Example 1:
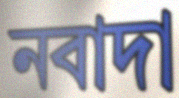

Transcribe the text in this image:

নবাদা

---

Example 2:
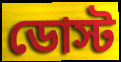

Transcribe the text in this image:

ডোস্ট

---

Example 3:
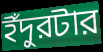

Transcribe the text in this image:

ইঁদুরটার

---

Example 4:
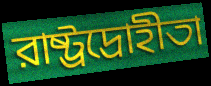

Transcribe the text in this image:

রাষ্ট্রদ্রোহীতা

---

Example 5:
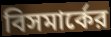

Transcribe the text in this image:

বিসমার্কের